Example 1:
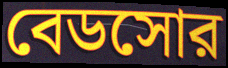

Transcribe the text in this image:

বেডসোর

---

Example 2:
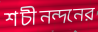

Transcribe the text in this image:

শচীনন্দনের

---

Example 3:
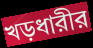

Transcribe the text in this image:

খড়ধারীর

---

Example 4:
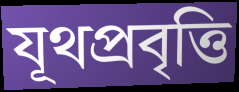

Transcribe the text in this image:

যূথপ্রবৃত্তি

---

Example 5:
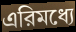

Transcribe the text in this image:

এরিমধ্যে